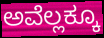
ಅವೆಲ್ಲಕ್ಕೂ